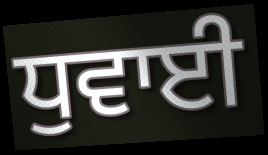
ਧੁਵਾਈ